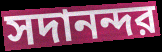
সদানন্দর